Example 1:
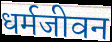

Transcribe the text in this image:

धर्मजीवन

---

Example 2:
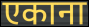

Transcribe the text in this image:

एकाना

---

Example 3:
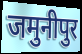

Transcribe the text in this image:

जमुनीपुर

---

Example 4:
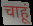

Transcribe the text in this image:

चाहूं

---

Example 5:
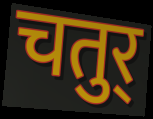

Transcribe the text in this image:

चतुर्